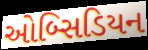
ઓબ્સિડિયન